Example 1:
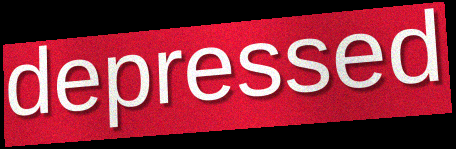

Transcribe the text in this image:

depressed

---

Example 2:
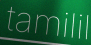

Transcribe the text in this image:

tamilil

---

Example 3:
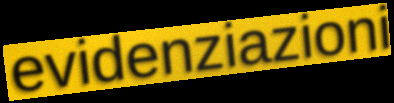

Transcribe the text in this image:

evidenziazioni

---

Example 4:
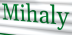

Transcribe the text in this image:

Mihaly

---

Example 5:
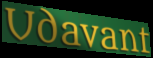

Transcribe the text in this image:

Udavant